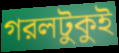
গরলটুকুই